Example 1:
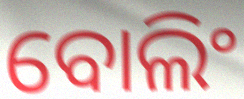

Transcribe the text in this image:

ବୋଲିଂ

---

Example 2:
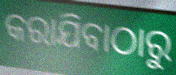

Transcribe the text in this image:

କରାଯିବାଠାରୁ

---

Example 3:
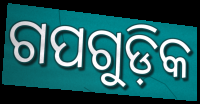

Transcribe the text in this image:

ଗପଗୁଡ଼ିକ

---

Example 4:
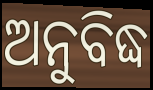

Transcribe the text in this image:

ଅନୁବିଦ୍ଧ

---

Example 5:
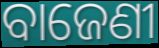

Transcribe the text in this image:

ବାଜେଣୀ